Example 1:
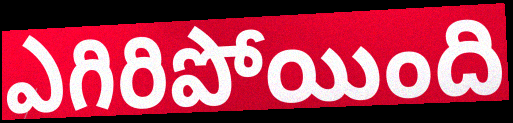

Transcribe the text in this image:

ఎగిరిపోయింది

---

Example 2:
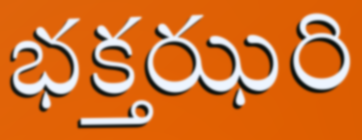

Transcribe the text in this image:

భక్తఝరి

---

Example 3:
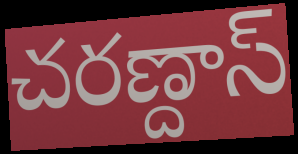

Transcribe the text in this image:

చరణ్దాస్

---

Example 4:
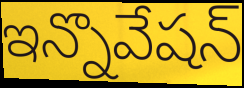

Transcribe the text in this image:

ఇన్నొవేషన్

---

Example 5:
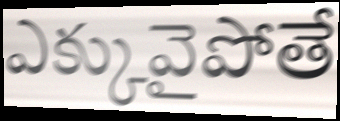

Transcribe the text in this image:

ఎక్కువైపోతే